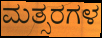
ಮತ್ಸರಗಳ